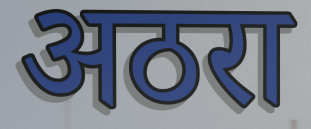
अठरा